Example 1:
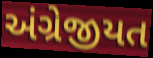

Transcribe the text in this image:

અંગ્રેજીયત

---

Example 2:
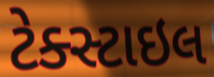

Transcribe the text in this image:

ટેક્સ્ટાઇલ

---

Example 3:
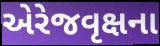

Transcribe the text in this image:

એરેજવૃક્ષના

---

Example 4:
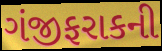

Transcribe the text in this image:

ગંજીફરાકની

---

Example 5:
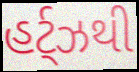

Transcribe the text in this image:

હર્ટ્ઝથી